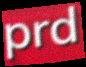
prd